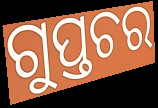
ଗୁପ୍ତଚର